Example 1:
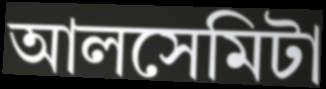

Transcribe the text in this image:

আলসেমিটা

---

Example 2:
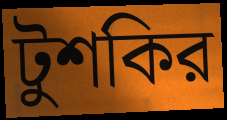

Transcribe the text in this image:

টুশকির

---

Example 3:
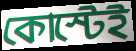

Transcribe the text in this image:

কোস্টেই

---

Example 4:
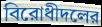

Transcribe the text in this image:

বিরোধীদলের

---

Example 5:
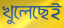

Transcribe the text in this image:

খুলেছেই